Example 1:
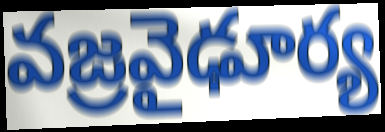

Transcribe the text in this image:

వజ్రవైఢూర్య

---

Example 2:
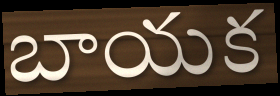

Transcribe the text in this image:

బాయక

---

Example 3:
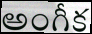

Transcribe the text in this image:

అంగీక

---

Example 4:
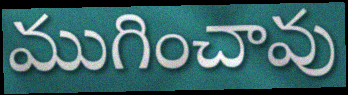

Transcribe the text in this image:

ముగించావు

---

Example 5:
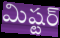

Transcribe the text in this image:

మిష్టర్